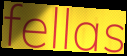
fellas